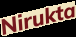
Nirukta